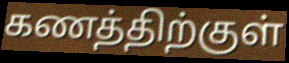
கணத்திற்குள்